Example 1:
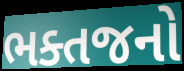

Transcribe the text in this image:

ભક્તજનો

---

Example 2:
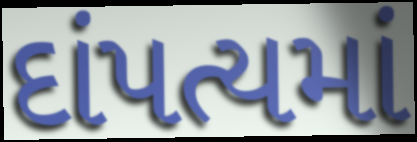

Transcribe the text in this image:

દાંપત્યમાં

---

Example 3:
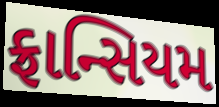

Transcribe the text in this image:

ફ્રાન્સિયમ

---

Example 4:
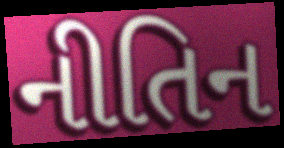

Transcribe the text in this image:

નીતિન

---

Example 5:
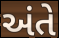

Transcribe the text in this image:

અંતે